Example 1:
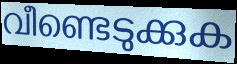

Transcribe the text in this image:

വീണ്ടെടുക്കുക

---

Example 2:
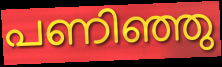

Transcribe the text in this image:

പണിഞ്ഞു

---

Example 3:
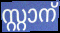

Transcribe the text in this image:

സ്റ്റാന്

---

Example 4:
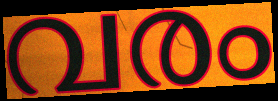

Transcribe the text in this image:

വരം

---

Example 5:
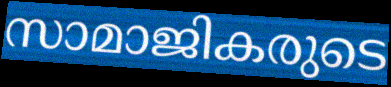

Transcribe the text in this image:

സാമാജികരുടെ